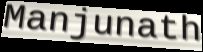
Manjunath